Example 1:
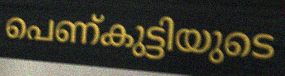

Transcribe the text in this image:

പെണ്കുട്ടിയുടെ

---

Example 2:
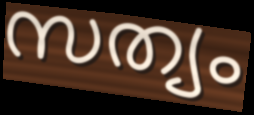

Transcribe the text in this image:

സത്യം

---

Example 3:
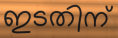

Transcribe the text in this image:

ഇടതിന്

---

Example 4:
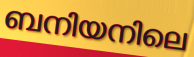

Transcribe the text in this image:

ബനിയനിലെ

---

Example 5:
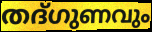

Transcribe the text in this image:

തദ്ഗുണവും